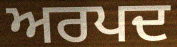
ਅਰਪਦ